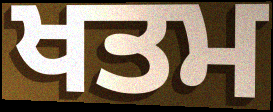
ਖਤਮ